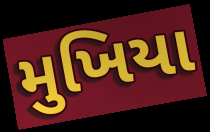
મુખિયા